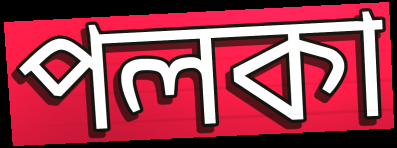
পলকা